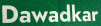
Dawadkar